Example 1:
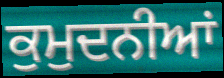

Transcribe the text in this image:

ਕੁਮੁਦਨੀਆਂ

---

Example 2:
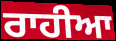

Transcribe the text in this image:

ਰਾਹੀਆ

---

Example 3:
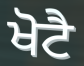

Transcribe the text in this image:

ਖੋਟੈ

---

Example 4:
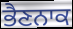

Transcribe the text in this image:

ਭੈਣਨਾਕ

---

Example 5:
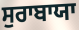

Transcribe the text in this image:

ਸੁਰਾਬਾਯਾ